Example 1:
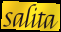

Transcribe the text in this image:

salita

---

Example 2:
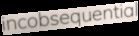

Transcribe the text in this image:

incobsequential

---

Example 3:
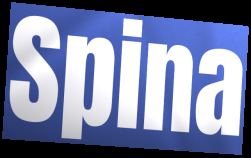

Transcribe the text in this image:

Spina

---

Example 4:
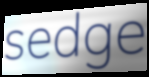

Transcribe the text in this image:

sedge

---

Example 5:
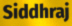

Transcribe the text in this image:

Siddhraj